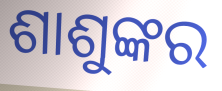
ଶାଶୁଙ୍କର